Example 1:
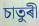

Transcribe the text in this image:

চাতুৰী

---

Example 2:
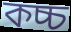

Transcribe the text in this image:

কচ্চ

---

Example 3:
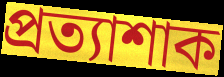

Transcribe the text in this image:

প্ৰত্যাশাক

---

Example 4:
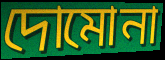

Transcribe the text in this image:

দোমোনা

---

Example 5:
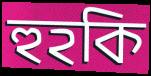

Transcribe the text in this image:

হুহকি